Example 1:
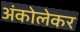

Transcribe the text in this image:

अंकोलेकर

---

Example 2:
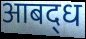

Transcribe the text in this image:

आबद्ध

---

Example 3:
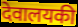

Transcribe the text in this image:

देवालयकी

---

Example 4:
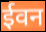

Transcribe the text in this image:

ईवन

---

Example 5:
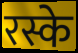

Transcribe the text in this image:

रस्के